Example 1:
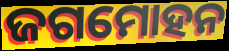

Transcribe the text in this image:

ଜଗମୋହନ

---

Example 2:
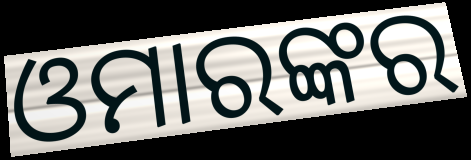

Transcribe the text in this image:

ଓମାରଙ୍କର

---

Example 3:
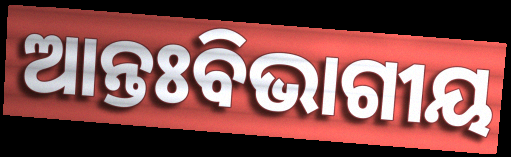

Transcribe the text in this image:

ଆନ୍ତଃବିଭାଗୀୟ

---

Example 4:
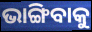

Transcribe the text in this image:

ଭାଙ୍ଗିବାକୁ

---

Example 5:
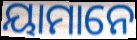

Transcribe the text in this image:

ୟାମାନେ